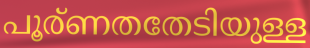
പൂര്ണതതേടിയുള്ള